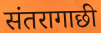
संतरागाछी